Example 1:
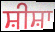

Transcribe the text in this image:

ਸ਼ੀਸ਼ਾ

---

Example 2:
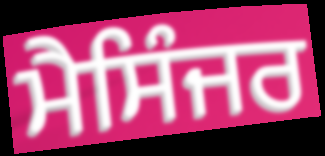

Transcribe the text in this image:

ਮੈਸਿੰਜਰ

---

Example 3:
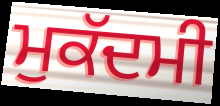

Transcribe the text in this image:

ਮੁਕੱਦਮੀ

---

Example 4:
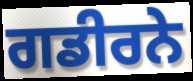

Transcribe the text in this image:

ਗਡੀਰਨੇ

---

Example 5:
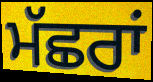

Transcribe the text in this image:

ਮੱਛਰਾਂ